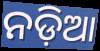
ନଡ଼ିଆ